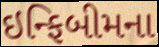
ઇન્ફિબીમના